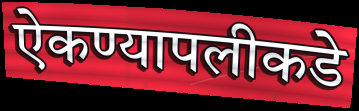
ऐकण्यापलीकडे